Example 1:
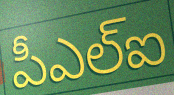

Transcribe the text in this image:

పీఎల్ఐ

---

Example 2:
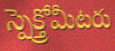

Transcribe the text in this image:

స్పెక్త్రోమీటరు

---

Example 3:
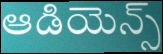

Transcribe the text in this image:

ఆడియెన్స్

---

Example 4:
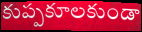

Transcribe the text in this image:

కుప్పకూలకుండా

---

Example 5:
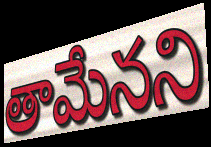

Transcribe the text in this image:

తామేనని